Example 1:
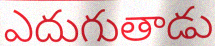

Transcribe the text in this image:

ఎదుగుతాడు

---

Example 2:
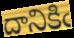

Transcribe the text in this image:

దానికిఁ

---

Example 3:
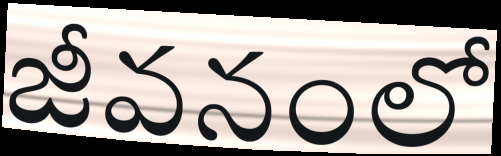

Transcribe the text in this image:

జీవనంలో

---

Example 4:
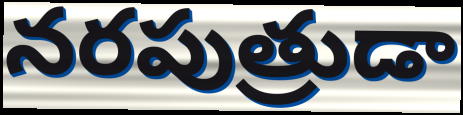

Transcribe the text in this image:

నరపుత్రుడా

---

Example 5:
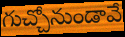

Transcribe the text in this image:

గుచ్చోనుండావే